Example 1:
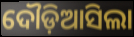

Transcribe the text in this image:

ଦୌଡ଼ିଆସିଲା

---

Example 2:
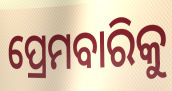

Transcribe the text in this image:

ପ୍ରେମବାରିକୁ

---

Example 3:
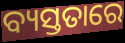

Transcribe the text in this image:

ବ୍ୟସ୍ତତାରେ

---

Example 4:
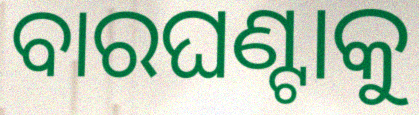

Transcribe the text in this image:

ବାରଘଣ୍ଟାକୁ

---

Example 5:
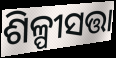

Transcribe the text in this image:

ଶିଳ୍ପୀସତ୍ତା